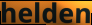
helden